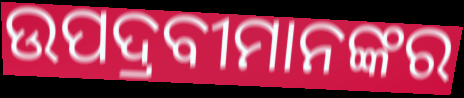
ଉପଦ୍ରବୀମାନଙ୍କର